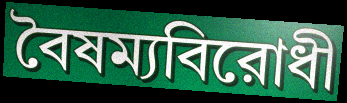
বৈষম্যবিরোধী